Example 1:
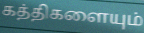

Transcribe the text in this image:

கத்திகளையும்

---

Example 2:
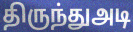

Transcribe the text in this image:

திருந்துஅடி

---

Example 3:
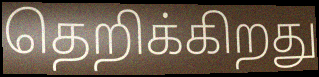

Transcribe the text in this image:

தெறிக்கிறது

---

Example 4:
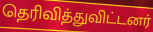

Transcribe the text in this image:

தெரிவித்துவிட்டனர்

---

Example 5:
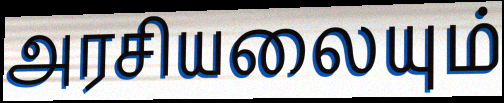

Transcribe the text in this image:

அரசியலையும்